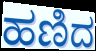
ಹಣಿದ